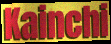
Kainchi